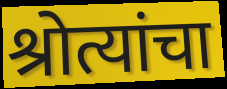
श्रोत्यांचा